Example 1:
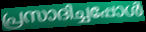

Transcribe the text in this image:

പ്രസാദിച്ചപ്പോൾ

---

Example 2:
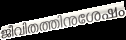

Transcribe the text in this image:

ജീവിതത്തിനുശേഷം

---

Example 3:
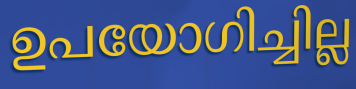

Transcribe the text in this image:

ഉപയോഗിച്ചില്ല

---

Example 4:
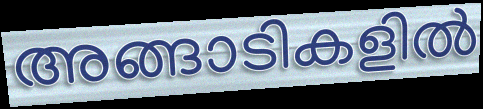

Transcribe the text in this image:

അങ്ങാടികളിൽ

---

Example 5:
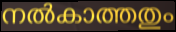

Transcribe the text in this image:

നൽകാത്തതും